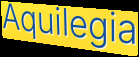
Aquilegia